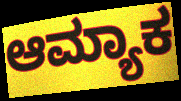
ಆಮ್ಯಾಕ